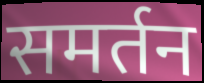
समर्तन